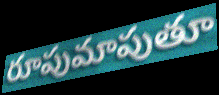
రూపుమాపుతూ